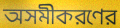
অসমীকরণের